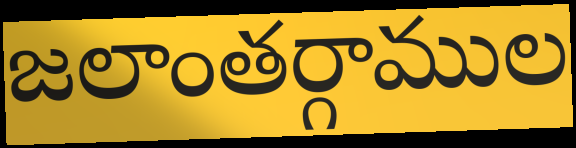
జలాంతర్గాముల